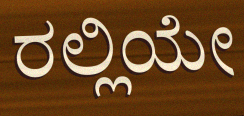
ರಲ್ಲಿಯೇ